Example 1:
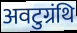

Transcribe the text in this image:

अवटुग्रंथि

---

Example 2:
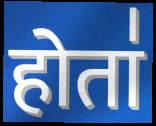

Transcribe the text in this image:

होता॑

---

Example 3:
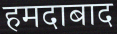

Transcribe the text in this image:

हमदाबाद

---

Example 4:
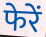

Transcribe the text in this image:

फेरें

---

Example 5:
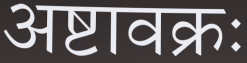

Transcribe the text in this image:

अष्टावक्रः